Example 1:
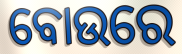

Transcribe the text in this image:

ବୋଉରେ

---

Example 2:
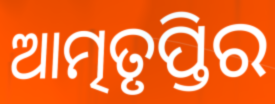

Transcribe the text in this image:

ଆତ୍ମତୃପ୍ତିର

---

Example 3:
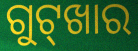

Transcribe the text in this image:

ଗୁଟ୍‌ଖାର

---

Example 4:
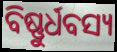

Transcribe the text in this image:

ବିଷ୍ଣୁର୍ଧବସ୍ୟ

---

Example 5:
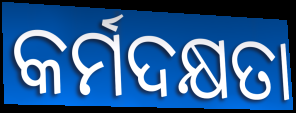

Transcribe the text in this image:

କର୍ମଦକ୍ଷତା